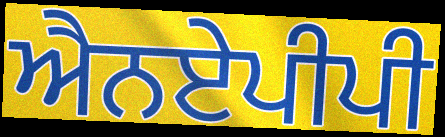
ਐਨਏਪੀਪੀ